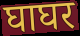
घाघर